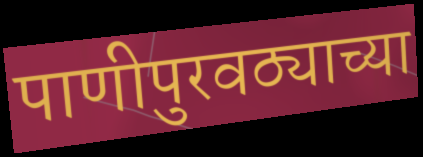
पाणीपुरवठ्याच्या